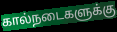
கால்நடைகளுக்கு